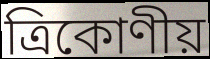
ত্ৰিকোণীয়